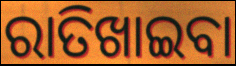
ରାତିଖାଇବା